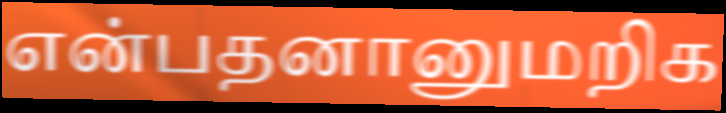
என்பதனானுமறிக